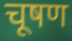
चूषण